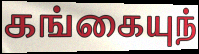
கங்கையுந்